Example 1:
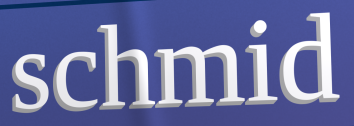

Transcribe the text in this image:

schmid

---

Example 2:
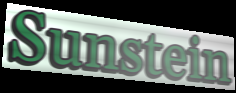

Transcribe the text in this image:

Sunstein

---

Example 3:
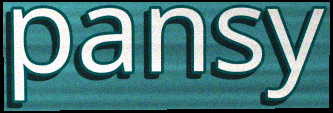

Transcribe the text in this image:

pansy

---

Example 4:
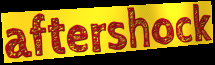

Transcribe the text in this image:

aftershock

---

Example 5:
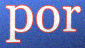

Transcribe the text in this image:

por